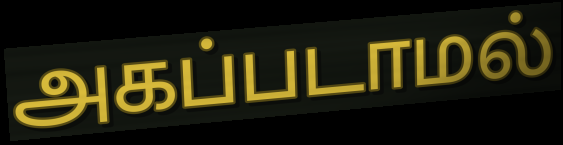
அகப்படாமல்